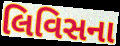
લિવિસના